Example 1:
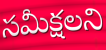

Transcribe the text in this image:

సమీక్షలని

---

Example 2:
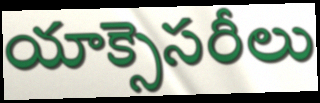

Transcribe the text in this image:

యాక్సెసరీలు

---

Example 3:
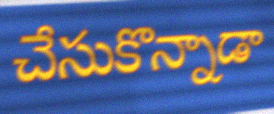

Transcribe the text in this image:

చేసుకొన్నాడా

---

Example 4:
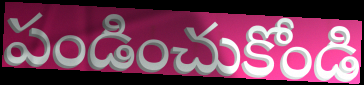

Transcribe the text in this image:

పండించుకోండి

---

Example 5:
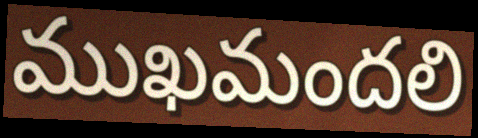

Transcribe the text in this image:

ముఖమందలి